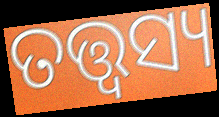
ତତ୍ତ୍ୱସ୍ୟ